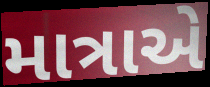
માત્રાએ